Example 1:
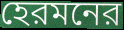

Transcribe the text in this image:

হেরমনের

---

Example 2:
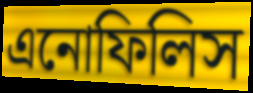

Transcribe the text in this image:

এনোফিলিস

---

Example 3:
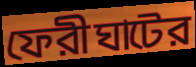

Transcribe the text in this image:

ফেরীঘাটের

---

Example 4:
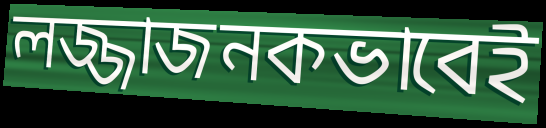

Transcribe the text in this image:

লজ্জাজনকভাবেই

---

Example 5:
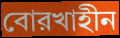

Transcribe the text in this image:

বোরখাহীন